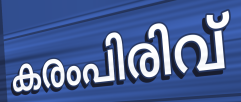
കരംപിരിവ്